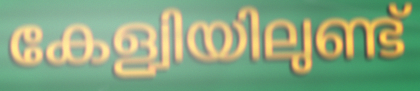
കേള്വിയിലുണ്ട്